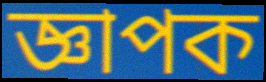
জ্ঞাপক